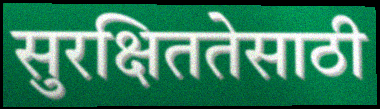
सुरक्षिततेसाठी